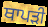
ਥਾਪੜੀ